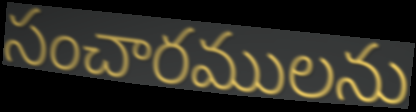
సంచారములను